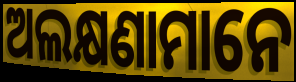
ଅଲକ୍ଷଣାମାନେ